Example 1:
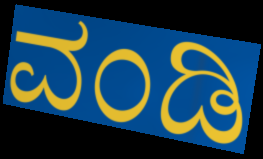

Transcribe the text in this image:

ವಂಡಿ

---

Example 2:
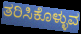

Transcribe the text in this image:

ತರಿಸಿಕೊಳ್ಳುವ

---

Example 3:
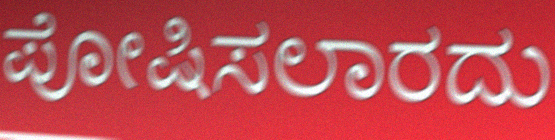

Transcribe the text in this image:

ಪೋಷಿಸಲಾರದು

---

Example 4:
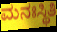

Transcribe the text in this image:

ಮನಃಸ್ಥಿತಿ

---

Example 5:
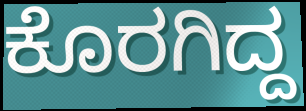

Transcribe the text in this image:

ಕೊರಗಿದ್ದ